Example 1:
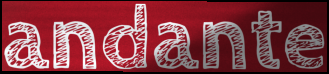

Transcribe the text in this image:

andante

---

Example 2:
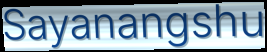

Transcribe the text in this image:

Sayanangshu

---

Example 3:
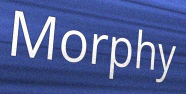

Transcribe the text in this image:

Morphy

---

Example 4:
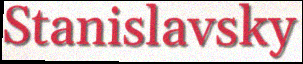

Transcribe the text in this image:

Stanislavsky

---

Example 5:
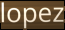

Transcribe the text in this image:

lopez